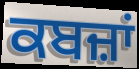
ਕਬਜ਼ਾਂ